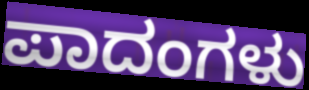
ಪಾದಂಗಳು